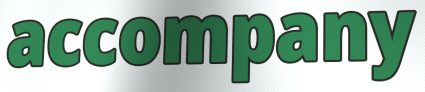
accompany